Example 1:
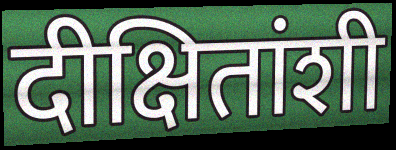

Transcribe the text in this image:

दीक्षितांशी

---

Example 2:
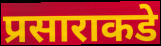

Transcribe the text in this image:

प्रसाराकडे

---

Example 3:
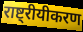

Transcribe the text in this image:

राष्ट्रीयीकरण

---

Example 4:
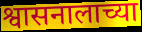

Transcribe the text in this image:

श्वासनालाच्या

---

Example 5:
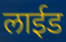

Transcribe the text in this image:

लाईड